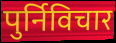
पुर्निविचार